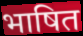
भाषित